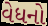
વેધનો